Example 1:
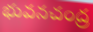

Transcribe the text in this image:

భువనచంద్ర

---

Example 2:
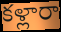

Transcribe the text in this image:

కళ్లారా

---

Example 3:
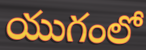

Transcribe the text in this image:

యుగంలో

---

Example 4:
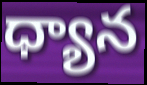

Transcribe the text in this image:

ధ్యాన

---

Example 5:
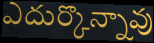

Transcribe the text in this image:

ఎదుర్కొన్నావు